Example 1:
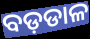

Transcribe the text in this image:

ବଡ଼ଡାଳ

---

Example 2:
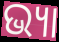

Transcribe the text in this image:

ଭ୍ୟା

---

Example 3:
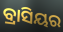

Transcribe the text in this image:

ବ୍ରାସିୟର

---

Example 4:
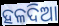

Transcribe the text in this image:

ହଳଦିଆ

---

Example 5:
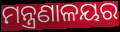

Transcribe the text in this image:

ମନ୍ତ୍ରଣାଳୟର